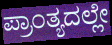
ಪ್ರಾಂತ್ಯದಲ್ಲೇ